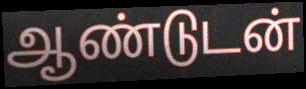
ஆண்டுடன்